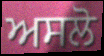
ਅਸਲੋ